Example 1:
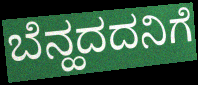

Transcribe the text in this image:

ಬೆನ್ಹದದನಿಗೆ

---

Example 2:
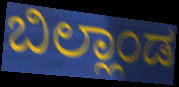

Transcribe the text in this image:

ಬಿಲ್ಲಾಂಡ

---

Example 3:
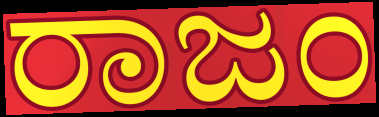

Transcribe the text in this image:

ರಾಜಂ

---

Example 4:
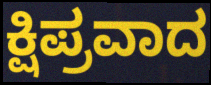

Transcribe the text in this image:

ಕ್ಷಿಪ್ರವಾದ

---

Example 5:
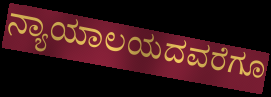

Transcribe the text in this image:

ನ್ಯಾಯಾಲಯದವರೆಗೂ